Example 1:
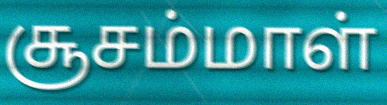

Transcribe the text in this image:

சூசம்மாள்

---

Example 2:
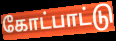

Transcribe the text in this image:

கோட்பாட்டு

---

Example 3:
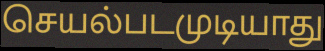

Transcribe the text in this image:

செயல்படமுடியாது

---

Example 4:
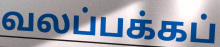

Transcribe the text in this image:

வலப்பக்கப்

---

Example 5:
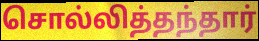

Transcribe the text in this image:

சொல்லித்தந்தார்